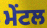
ਮੇਂਟਲ